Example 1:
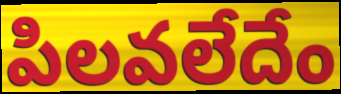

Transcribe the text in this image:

పిలవలేదేం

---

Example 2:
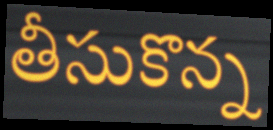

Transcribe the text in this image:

తీసుకొన్న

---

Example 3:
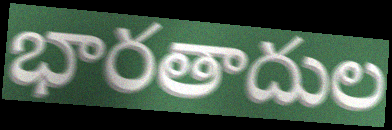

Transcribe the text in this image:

భారతాదుల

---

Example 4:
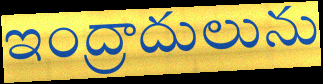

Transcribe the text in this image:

ఇంద్రాదులును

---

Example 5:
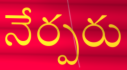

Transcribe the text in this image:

నేర్పరు